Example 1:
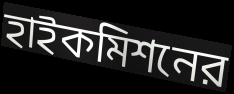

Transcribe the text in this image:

হাইকমিশনের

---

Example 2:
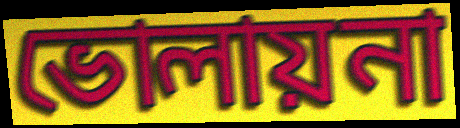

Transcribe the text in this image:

ভোলায়না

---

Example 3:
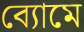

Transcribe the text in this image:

ব্যোমে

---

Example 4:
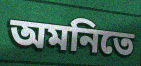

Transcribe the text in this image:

অমনিতে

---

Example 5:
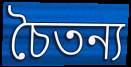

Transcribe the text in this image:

চৈতন্য